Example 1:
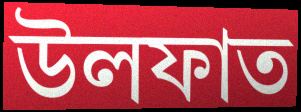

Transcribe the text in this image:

উলফাত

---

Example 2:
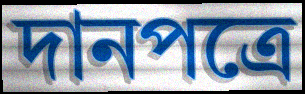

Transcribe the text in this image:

দানপত্রে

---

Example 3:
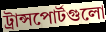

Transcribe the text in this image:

ট্রান্সপোর্টগুলো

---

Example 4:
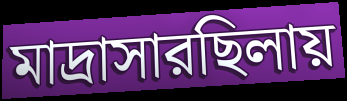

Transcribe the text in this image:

মাদ্রাসারছিলায়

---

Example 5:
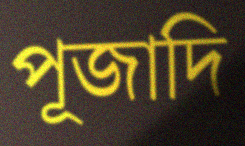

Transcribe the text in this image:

পূজাদি